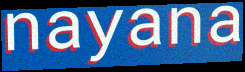
nayana